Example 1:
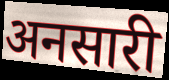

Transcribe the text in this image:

अनसारी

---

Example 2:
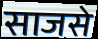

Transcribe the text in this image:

साजसे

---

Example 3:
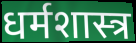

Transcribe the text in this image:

धर्मशास्त्र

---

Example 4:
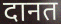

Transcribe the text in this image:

दानत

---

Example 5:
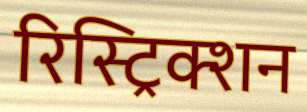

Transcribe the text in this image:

रिस्ट्रिक्शन